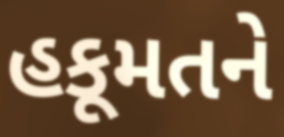
હકૂમતને